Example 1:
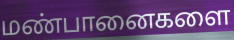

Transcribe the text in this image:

மண்பானைகளை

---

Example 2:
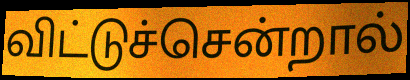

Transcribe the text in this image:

விட்டுச்சென்றால்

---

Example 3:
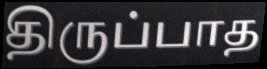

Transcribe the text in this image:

திருப்பாத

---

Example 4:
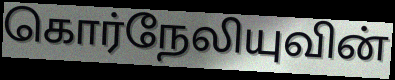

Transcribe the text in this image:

கொர்நேலியுவின்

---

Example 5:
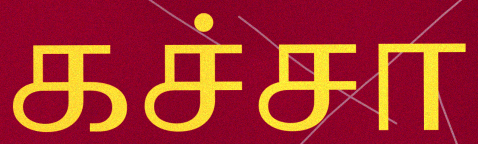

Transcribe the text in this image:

கச்சா